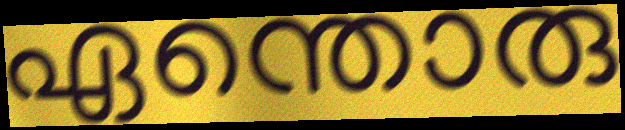
ഏന്തൊരു